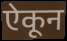
ऐकून